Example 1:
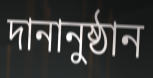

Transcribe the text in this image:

দানানুষ্ঠান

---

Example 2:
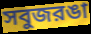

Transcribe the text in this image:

সবুজরঙা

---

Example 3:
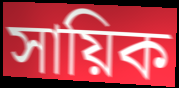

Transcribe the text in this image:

সায়িক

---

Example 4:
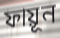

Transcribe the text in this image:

ফায়ূন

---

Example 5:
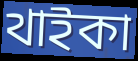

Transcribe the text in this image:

থাইকা